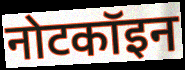
नोटकॉइन